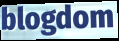
blogdom